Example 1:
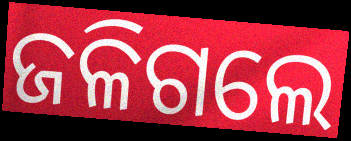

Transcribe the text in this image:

ଜଳିଗଲେ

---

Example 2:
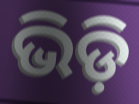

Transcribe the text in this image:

ଭିଡ଼ି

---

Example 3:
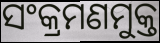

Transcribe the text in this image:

ସଂକ୍ରମଣମୁକ୍ତ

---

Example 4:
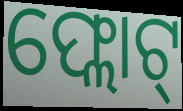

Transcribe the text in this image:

ଫ୍ଲୋଟ୍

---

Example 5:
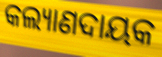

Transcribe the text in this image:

କଲ୍ୟାଣଦାୟକ